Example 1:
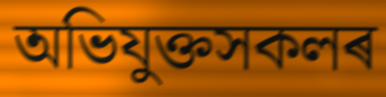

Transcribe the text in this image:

অভিযুক্তসকলৰ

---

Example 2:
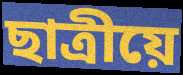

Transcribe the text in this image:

ছাত্ৰীয়ে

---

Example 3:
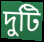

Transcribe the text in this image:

দুটি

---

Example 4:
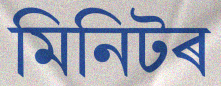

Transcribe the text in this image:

মিনিটৰ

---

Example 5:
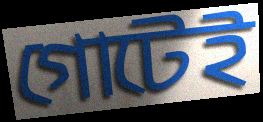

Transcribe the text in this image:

গোটেই